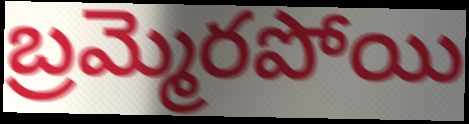
బ్రమ్మెరపోయి